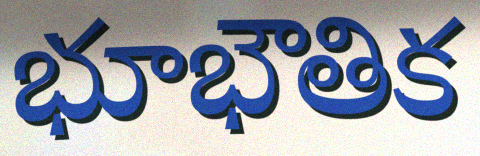
భూభౌతిక